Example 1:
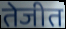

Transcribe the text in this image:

तेजीत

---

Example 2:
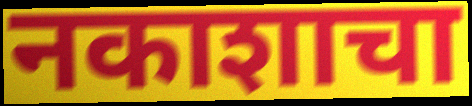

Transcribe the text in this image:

नकाशाचा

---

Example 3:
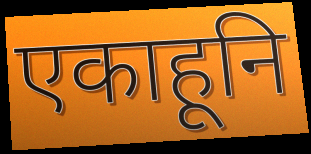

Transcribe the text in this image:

एकाहूनि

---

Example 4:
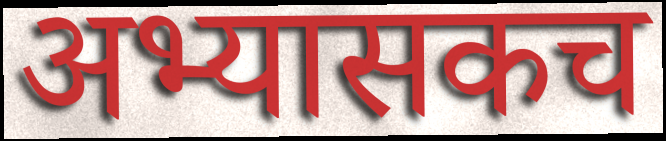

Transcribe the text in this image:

अभ्यासकच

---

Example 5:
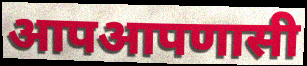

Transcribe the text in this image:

आपआपणासी